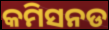
କମିସନଡ